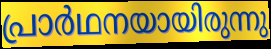
പ്രാർഥനയായിരുന്നു